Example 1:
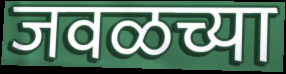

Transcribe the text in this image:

जवळच्या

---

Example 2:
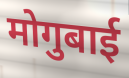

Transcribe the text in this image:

मोगुबाई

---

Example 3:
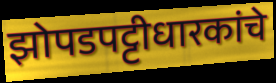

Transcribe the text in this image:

झोपडपट्टीधारकांचे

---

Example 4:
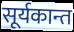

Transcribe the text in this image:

सूर्यकान्त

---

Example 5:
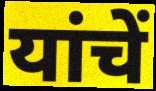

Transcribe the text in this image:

यांचें